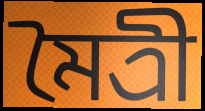
মৈত্রী